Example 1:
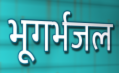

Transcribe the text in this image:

भूगर्भजल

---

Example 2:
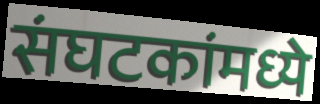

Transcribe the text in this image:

संघटकांमध्ये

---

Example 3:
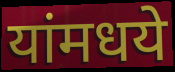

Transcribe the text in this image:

यांमधये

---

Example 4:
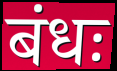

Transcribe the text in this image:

बंधः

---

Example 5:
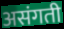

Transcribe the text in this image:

असंगती